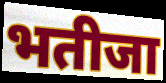
भतीजा